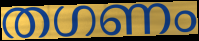
തഗണം